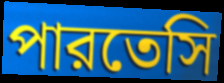
পারতেসি